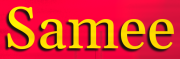
Samee